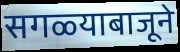
सगळ्याबाजूने